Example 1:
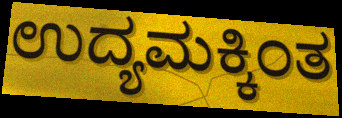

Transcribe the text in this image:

ಉದ್ಯಮಕ್ಕಿಂತ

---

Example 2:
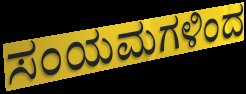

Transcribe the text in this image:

ಸಂಯಮಗಳಿಂದ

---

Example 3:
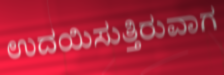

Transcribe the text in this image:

ಉದಯಿಸುತ್ತಿರುವಾಗ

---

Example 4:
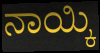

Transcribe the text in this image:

ನಾಯ್ಕಿ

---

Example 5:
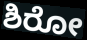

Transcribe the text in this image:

ಶಿರೋ